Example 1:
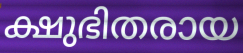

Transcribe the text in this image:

ക്ഷുഭിതരായ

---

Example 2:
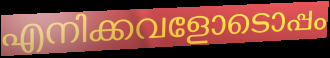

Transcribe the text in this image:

എനിക്കവളോടൊപ്പം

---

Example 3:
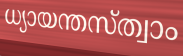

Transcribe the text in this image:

ധ്യായന്തസ്ത്വാം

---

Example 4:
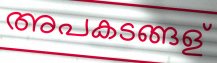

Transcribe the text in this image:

അപകടങ്ങള്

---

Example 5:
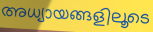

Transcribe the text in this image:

അധ്യായങ്ങളിലൂടെ